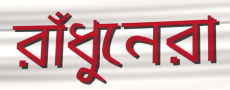
রাঁধুনেরা